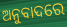
ଅନୁବାଦରେ